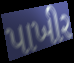
પાખીર